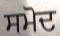
ਸਮੋਦ